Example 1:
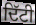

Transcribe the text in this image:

ਦਿੱਟੀ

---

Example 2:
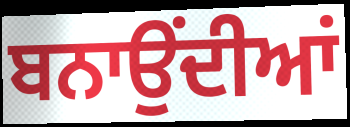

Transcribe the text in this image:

ਬਨਾਉਂਦੀਆਂ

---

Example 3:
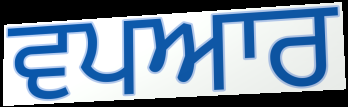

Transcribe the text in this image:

ਵਪਆਰ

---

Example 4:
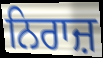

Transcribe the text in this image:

ਨਿਰਾਜ਼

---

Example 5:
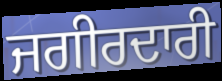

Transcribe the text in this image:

ਜਗੀਰਦਾਰੀ